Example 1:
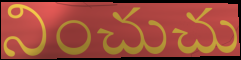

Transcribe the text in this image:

నించుచు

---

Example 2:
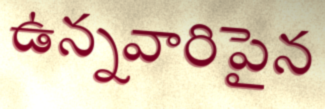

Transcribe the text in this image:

ఉన్నవారిపైన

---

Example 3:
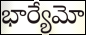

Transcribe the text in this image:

భార్యేమో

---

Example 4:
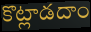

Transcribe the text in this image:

కొట్లాడదాం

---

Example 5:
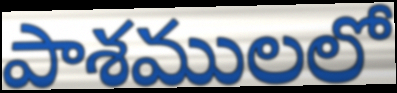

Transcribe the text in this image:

పాశములలో